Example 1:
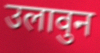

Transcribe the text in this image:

उलावुन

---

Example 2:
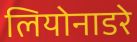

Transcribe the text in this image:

लियोनाडरे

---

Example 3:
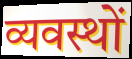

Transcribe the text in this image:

व्यवस्थों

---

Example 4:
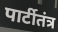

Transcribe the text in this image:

पार्टीतंत्र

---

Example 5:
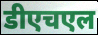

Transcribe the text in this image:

डीएचएल